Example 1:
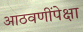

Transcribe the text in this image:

आठवणींपेक्षा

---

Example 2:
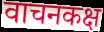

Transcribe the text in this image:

वाचनकक्ष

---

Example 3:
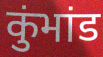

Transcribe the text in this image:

कुंभांड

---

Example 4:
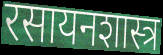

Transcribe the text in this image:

रसायनशास्त्र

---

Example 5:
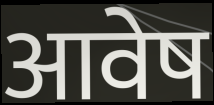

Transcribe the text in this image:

आवेष